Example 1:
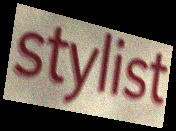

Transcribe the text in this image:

stylist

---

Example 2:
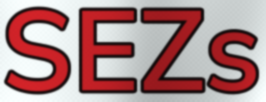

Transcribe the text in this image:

SEZs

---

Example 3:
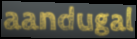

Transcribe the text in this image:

aandugal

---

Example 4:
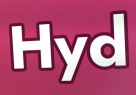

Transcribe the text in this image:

Hyd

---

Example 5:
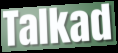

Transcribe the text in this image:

Talkad